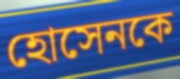
হোসেনকে